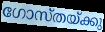
ഗോസ്തയ്ക്കു